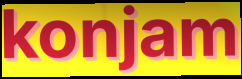
konjam